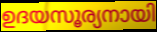
ഉദയസൂര്യനായി